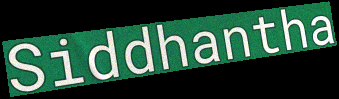
Siddhantha